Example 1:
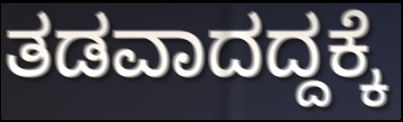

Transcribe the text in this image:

ತಡವಾದದ್ದಕ್ಕೆ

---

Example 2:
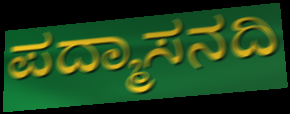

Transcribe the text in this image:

ಪದ್ಮಾಸನದಿ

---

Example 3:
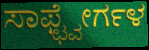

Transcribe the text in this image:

ಸಾಫ್ಟ್ವೇರ್ಗಳ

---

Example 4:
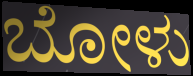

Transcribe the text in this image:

ಬೋಳು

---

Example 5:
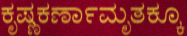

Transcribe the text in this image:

ಕೃಷ್ಣಕರ್ಣಾಮೃತಕ್ಕೂ